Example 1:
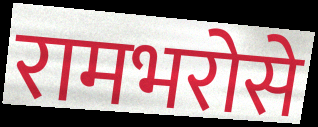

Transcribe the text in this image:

रामभरोसे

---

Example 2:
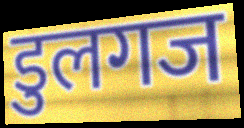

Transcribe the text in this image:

डुलगज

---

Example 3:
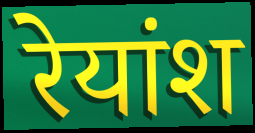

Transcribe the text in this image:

रेयांश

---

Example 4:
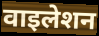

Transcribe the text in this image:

वाइलेशन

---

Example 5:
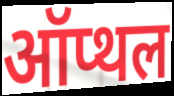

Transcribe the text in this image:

ऑप्थल